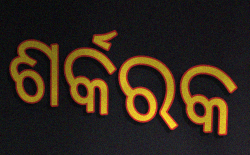
ଶର୍କରକ